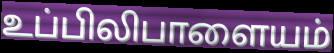
உப்பிலிபாளையம்